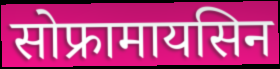
सोफ्रामायसिन